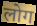
लोग